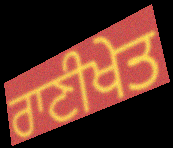
ਰਾਣੀਖੇਤ